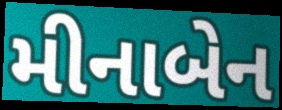
મીનાબેન